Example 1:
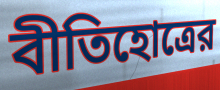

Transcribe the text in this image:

বীতিহোত্রের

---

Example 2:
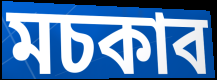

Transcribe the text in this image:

মচকাব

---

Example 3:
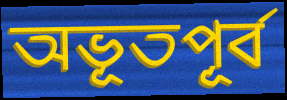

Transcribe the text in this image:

অভূতপূর্ব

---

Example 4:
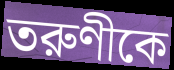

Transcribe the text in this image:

তরুণীকে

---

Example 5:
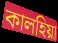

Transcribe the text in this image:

কালহিয়া